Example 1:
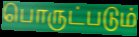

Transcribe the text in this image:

பொருட்படும்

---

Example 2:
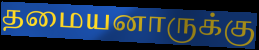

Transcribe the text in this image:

தமையனாருக்கு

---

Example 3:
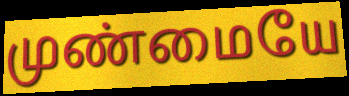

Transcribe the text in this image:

முண்மையே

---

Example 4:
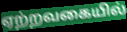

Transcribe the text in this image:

ஏற்றவகையில்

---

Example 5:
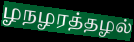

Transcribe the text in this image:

ழநழரத்தழல்